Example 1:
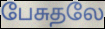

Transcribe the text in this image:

பேசுதலே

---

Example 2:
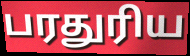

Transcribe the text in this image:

பரதுரிய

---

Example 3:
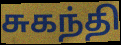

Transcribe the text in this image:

சுகந்தி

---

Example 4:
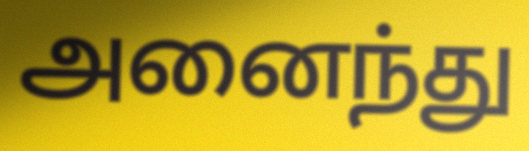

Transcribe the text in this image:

அனைந்து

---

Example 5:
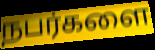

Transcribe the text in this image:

நபர்களை